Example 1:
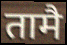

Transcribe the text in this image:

तामै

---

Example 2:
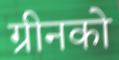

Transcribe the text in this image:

ग्रीनको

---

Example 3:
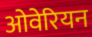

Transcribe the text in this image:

ओवेरियन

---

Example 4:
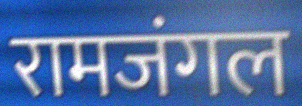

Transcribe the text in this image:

रामजंगल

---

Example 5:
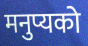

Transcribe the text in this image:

मनुप्यको